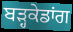
ਬੜ੍ਹਕੇਡਾਂਗ